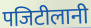
पजिटीलानी